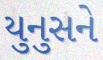
યુનુસને